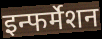
इन्फर्मेशन